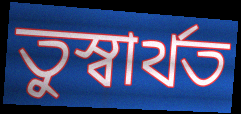
তুস্বাৰ্থত